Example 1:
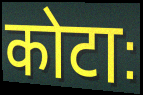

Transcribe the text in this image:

कोटाः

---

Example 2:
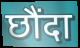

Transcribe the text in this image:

छौंदा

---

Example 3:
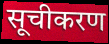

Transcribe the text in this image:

सूचीकरण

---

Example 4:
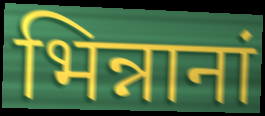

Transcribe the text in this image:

भिन्नानां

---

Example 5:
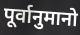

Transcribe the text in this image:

पूर्वानुमानो